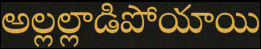
అల్లల్లాడిపోయాయి